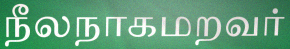
நீலநாகமறவர்